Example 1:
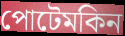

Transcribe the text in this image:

পোটেমকিন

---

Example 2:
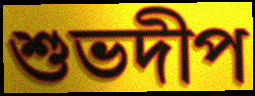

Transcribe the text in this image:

শুভদীপ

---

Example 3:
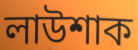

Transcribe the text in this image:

লাউশাক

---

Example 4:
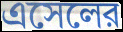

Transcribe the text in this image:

এসেলের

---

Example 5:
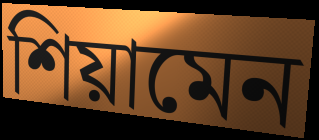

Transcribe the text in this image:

শিয়ামেন